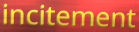
incitement